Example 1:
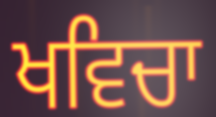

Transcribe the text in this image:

ਖਵਿਚਾ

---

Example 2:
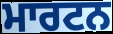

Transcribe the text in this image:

ਮਾਰਟਨ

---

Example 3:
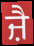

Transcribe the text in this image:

ਜ਼ੈ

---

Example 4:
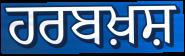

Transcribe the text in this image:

ਹਰਬਖ਼ਸ਼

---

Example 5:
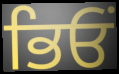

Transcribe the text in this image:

ਭਿਓਂ